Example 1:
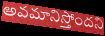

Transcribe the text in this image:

అవమానిస్తోందని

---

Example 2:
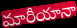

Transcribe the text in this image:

మారీయానా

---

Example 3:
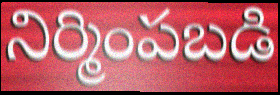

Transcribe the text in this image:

నిర్మింపబడి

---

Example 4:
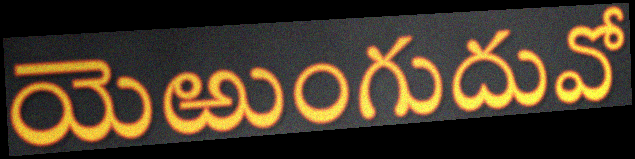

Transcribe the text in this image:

యెఱుంగుదువో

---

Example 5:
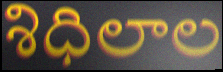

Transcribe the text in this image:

శిధిలాల